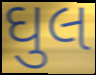
ઘુલ